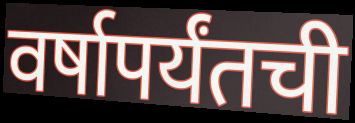
वर्षापर्यंतची